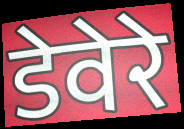
डेवेरे